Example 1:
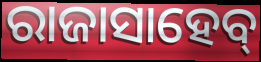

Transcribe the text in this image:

ରାଜାସାହେବ୍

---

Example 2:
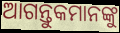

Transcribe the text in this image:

ଆଗନ୍ତୁକମାନଙ୍କୁ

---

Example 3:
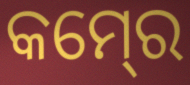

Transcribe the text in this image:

କମ୍‍ରେ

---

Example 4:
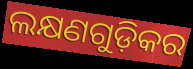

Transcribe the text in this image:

ଲକ୍ଷଣଗୁଡ଼ିକର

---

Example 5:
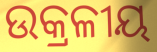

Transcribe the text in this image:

ଉକ୍ରଳୀୟ